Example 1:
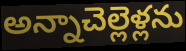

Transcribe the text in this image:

అన్నాచెల్లెళ్లను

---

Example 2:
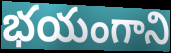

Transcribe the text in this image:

భయంగాని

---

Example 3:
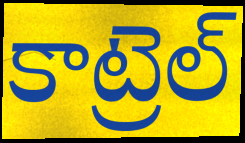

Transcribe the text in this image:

కాట్రెల్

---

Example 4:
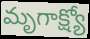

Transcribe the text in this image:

మృగాక్ష్యో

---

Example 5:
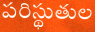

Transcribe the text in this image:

పరిస్థుతుల